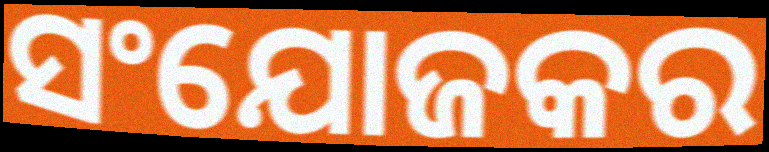
ସଂଯୋଜକର